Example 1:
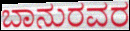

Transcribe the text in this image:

ಬಾನುರವರ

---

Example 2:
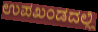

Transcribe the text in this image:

ಉಪಖಂಡದಲ್ಲಿ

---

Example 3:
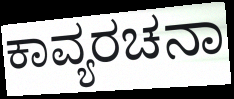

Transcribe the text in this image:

ಕಾವ್ಯರಚನಾ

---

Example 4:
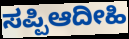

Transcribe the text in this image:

ಸಪ್ಪಿಆದೀಹಿ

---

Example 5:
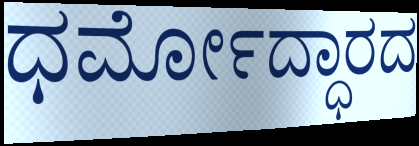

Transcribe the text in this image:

ಧರ್ಮೋದ್ಧಾರದ